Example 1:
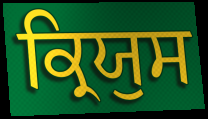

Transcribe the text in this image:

ਕ੍ਰਿਯੁਸ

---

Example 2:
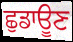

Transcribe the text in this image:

ਛੁਡਾਊਣ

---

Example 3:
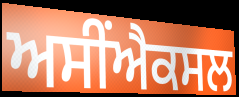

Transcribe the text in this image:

ਅਸੀਂਐਕਸਲ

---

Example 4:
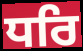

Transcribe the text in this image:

ਧਰਿ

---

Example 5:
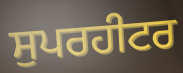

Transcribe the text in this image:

ਸੁਪਰਹੀਟਰ